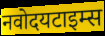
नवोदयटाइम्स